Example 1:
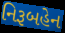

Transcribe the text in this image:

નિરૂબહેન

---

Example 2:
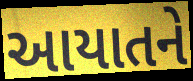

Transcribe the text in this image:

આયાતને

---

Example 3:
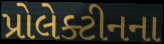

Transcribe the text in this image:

પ્રોલેક્ટીનના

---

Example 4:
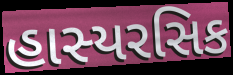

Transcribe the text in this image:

હાસ્યરસિક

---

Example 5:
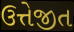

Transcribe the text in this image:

ઉત્તેજીત